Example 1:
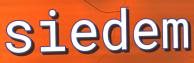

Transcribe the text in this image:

siedem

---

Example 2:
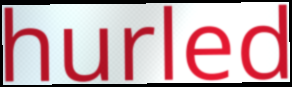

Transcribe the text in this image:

hurled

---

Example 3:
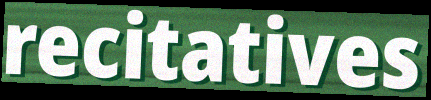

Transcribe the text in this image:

recitatives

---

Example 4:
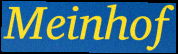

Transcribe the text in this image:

Meinhof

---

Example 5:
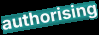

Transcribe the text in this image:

authorising